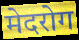
मेदरोग